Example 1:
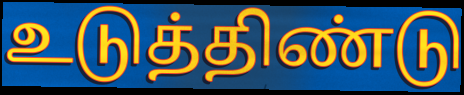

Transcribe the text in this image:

உடுத்திண்டு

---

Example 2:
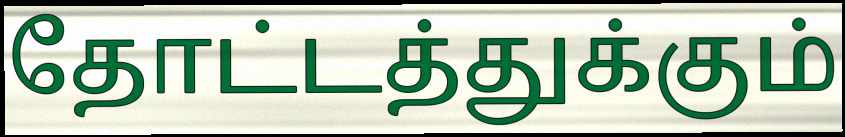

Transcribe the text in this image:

தோட்டத்துக்கும்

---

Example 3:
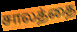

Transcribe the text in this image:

சாலத்தை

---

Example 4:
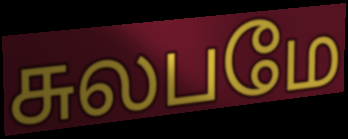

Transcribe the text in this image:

சுலபமே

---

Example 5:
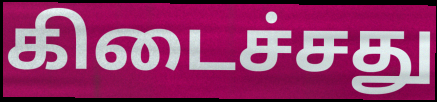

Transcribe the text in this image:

கிடைச்சது